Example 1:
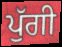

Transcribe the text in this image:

ਪੁੱਗੀ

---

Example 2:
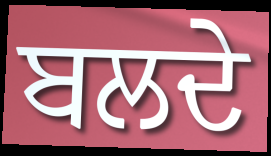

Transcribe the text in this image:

ਬਲਦੇ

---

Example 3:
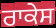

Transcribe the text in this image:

ਰਾਕੇਸ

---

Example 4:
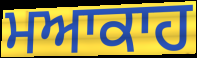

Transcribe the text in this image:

ਮਆਕਾਹ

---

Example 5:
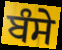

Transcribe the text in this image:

ਬੰਸੇ